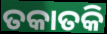
ତକାତକି